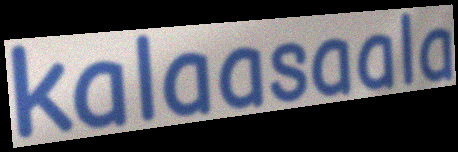
kalaasaala